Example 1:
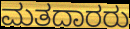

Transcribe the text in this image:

ಮತದಾರರು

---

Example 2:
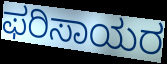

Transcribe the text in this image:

ಫರಿಸಾಯರ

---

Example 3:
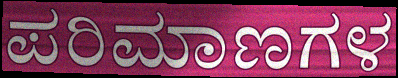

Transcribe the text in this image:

ಪರಿಮಾಣಗಳ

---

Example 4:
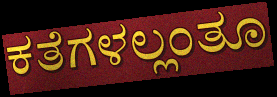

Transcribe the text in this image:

ಕತೆಗಳಲ್ಲಂತೂ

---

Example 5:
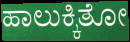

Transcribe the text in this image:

ಹಾಲುಕ್ಕಿತೋ